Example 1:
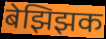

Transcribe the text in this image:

बेझिझक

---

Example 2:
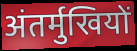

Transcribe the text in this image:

अंतर्मुखियों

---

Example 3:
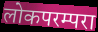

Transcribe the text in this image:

लोकपरम्परा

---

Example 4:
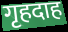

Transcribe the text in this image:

गृहदाह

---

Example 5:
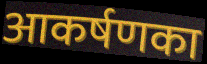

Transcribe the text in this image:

आकर्षणका